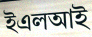
ইএলআই